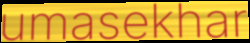
umasekhar